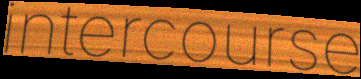
intercourse